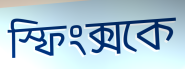
স্ফিংক্সকে